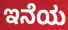
ಇನೆಯ